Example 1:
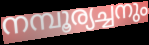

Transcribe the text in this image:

നമ്പൂര്യച്ചനും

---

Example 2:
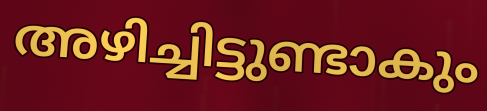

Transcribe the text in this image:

അഴിച്ചിട്ടുണ്ടാകും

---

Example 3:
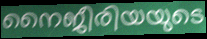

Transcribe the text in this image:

നൈജീരിയയുടെ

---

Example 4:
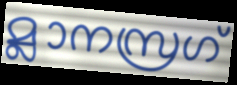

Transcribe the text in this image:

മ്ലാനസ്രഗ്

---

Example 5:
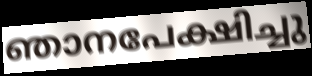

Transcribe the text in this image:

ഞാനപേക്ഷിച്ചു